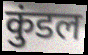
कुंडल